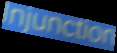
Injunction